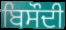
ਬਿਸੌਦੀ